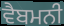
ਵੈਬਮਨੀ